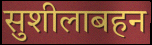
सुशीलाबहन